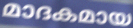
മാദകമായ